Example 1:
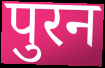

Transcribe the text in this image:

पुरन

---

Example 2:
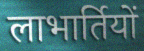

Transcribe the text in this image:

लाभार्तियों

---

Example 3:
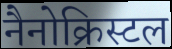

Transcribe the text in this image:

नैनोक्रिस्टल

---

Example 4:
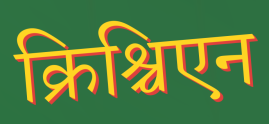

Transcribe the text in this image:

क्रिश्चिएन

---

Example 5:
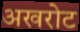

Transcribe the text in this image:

अखरोट